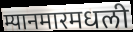
म्यानमारमधली